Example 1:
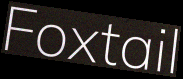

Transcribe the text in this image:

Foxtail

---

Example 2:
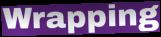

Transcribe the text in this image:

Wrapping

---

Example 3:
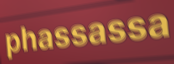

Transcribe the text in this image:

phassassa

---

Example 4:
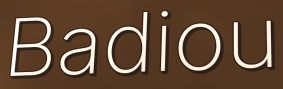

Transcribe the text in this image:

Badiou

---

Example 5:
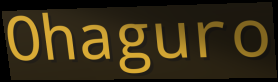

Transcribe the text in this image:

Ohaguro